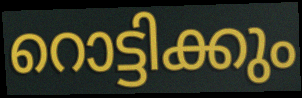
റൊട്ടിക്കും